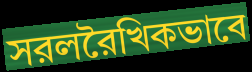
সরলরৈখিকভাবে